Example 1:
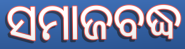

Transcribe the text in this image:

ସମାଜବଦ୍ଧ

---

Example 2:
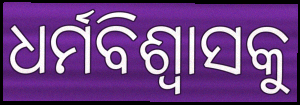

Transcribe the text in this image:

ଧର୍ମବିଶ୍ୱାସକୁ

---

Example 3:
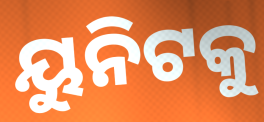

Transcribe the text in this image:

ୟୁନିଟକୁ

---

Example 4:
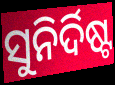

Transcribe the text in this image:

ସୁନିର୍ଦିଷ୍ଟ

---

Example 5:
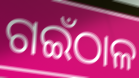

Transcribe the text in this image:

ଗଇଁଠାଳ